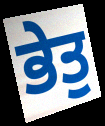
ਭੇਤੁ